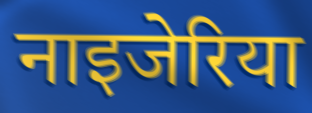
नाइजेरिया